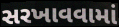
સરખાવવામાં